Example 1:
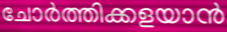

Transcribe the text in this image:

ചോർത്തിക്കളയാൻ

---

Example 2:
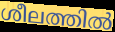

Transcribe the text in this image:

ശീലത്തിൽ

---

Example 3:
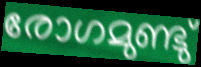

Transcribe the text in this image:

രോഗമുണ്ടു്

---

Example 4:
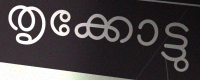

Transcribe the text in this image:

തൃക്കോട്ടു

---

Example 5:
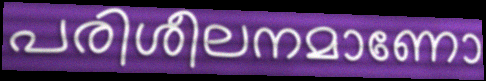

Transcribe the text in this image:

പരിശീലനമാണോ